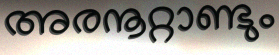
അരനൂറ്റാണ്ടും